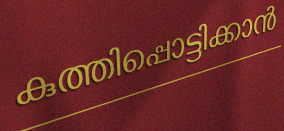
കുത്തിപ്പൊട്ടിക്കാൻ